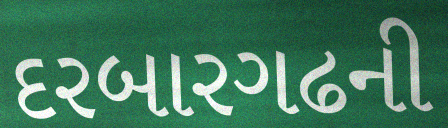
દરબારગઢની